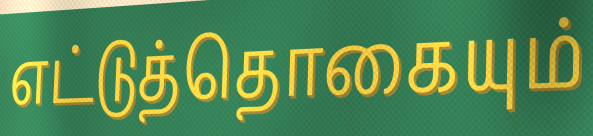
எட்டுத்தொகையும்